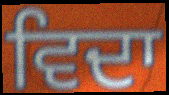
ਵਿਦਾ